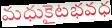
మధుకైటభవధ